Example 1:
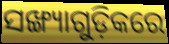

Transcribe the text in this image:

ସଙ୍ଖ୍ୟାଗୁଡ଼ିକରେ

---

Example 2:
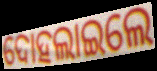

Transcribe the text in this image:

ଦୋହଲାଇଲେ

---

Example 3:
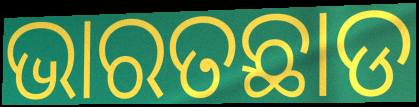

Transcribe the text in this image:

ଭାରତଛାଡ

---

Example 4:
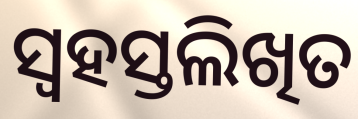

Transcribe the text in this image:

ସ୍ୱହସ୍ତଲିଖିତ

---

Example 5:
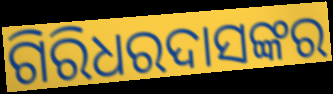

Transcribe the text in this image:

ଗିରିଧରଦାସଙ୍କର